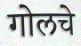
गोलचे